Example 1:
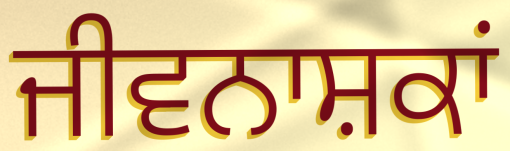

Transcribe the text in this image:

ਜੀਵਨਾਸ਼ਕਾਂ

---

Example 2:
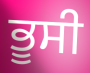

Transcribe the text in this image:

ਭੂਸੀ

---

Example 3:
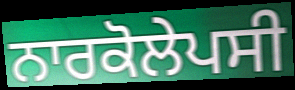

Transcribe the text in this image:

ਨਾਰਕੋਲੇਪਸੀ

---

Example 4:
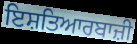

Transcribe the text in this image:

ਇਸ਼ਤਿਆਰਬਾਜ਼ੀ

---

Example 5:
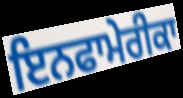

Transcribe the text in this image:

ਇਨਫਾਮੇਰੀਕਾ